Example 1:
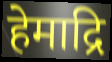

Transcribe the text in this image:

हेमाद्रि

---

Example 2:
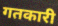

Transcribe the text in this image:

गतकारी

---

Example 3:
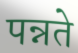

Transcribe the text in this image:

पन्नते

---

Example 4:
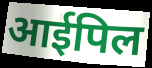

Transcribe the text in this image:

आईपिल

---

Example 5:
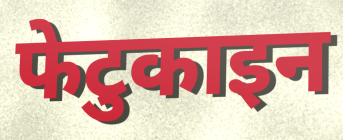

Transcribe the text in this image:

फेटुकाइन